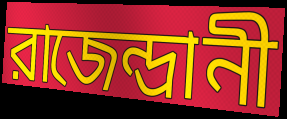
রাজেন্দ্রানী